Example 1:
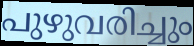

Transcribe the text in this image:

പുഴുവരിച്ചും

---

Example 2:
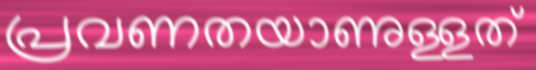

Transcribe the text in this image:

പ്രവണതയാണുള്ളത്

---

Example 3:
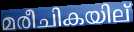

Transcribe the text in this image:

മരീചികയില്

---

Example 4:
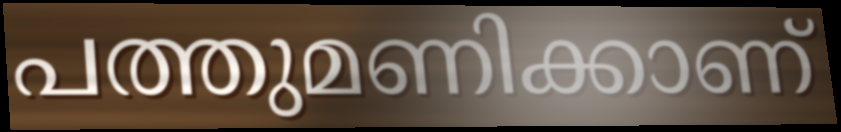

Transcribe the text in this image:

പത്തുമണിക്കാണ്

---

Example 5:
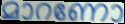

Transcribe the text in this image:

മാറണോ